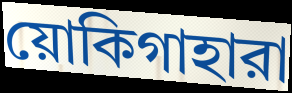
য়োকিগাহারা